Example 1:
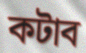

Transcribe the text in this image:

কটাব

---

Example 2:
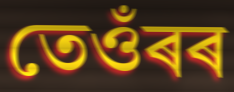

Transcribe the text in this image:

তেওঁৰৰ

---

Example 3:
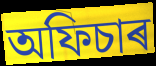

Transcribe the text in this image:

অফিচাৰ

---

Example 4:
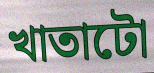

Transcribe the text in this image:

খাতাটো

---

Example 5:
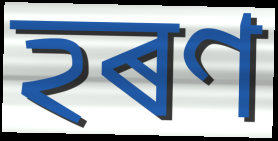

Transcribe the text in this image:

হৰণ